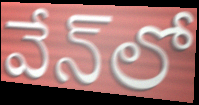
వేన్‌లో